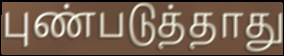
புண்படுத்தாது